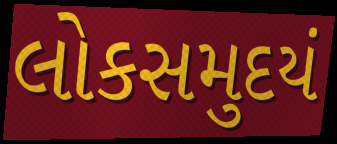
લોકસમુદયં